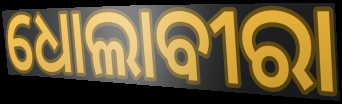
ଧୋଲାବୀରା